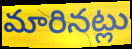
మారినట్లు